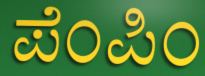
ಪೆಂಪಿಂ